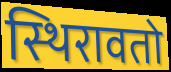
स्थिरावतो